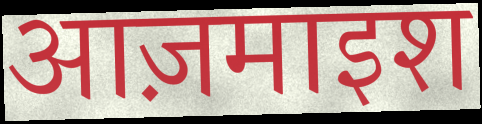
आज़माइश